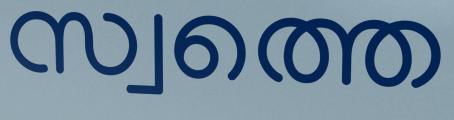
സ്വത്തെ